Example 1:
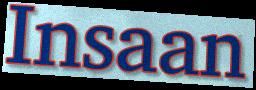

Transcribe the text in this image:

Insaan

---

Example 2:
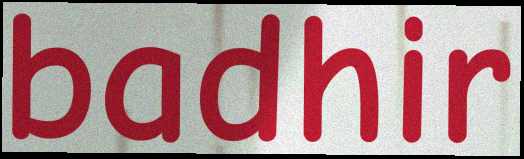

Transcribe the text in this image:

badhir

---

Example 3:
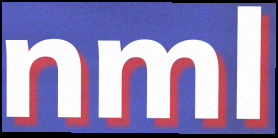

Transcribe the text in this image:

nml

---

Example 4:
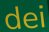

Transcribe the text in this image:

dei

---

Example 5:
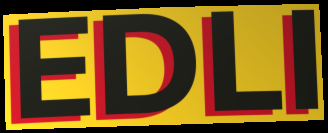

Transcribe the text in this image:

EDLI